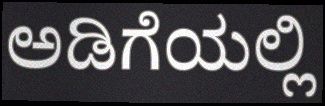
ಅಡಿಗೆಯಲ್ಲಿ